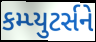
કમ્પ્યુટર્સને